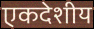
एकदेशीय